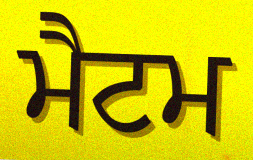
ਮੈਟਮ